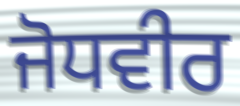
ਜੋਧਵੀਰ